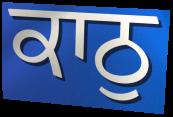
ਕਾਠੁ